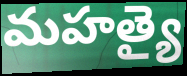
మహత్యై